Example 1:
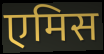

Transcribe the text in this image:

एमिस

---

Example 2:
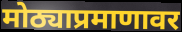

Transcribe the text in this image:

मोठ्याप्रमाणावर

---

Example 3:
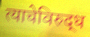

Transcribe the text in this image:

त्याचेविरुद्ध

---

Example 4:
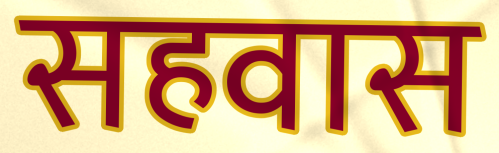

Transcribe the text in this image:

सहवास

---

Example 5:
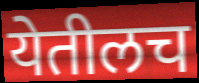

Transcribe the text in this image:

येतीलच